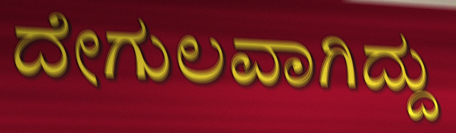
ದೇಗುಲವಾಗಿದ್ದು